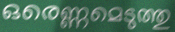
ഒരെണ്ണമെടുത്തു